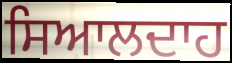
ਸਿਆਲਦਾਹ